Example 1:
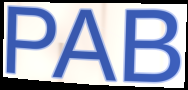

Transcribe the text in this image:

PAB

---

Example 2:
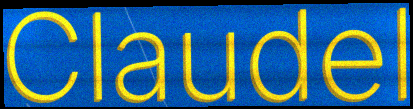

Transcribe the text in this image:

Claudel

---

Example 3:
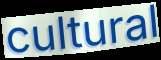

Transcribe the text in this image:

cultural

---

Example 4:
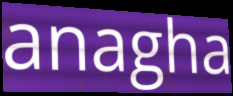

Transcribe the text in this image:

anagha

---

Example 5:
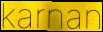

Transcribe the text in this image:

karnan